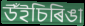
উঁইচিৰিঙা